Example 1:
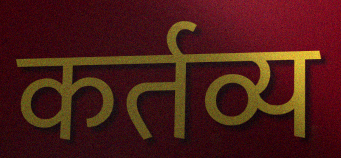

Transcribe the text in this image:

कर्तव्य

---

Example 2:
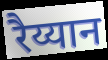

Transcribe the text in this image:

रैय्यान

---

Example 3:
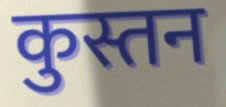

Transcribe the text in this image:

कुस्तन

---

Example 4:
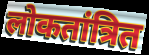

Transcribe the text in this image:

लोकतांत्रित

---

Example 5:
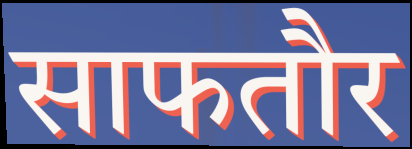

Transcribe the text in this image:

साफतौर